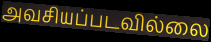
அவசியப்படவில்லை